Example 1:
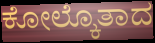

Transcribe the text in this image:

ಕೋಲ್ಕೊತಾದ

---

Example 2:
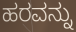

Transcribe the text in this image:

ಹರವನ್ನು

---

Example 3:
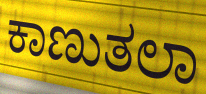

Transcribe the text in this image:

ಕಾಣುತಲಾ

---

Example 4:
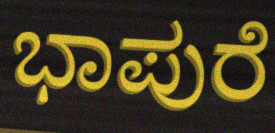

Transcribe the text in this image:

ಭಾಪುರೆ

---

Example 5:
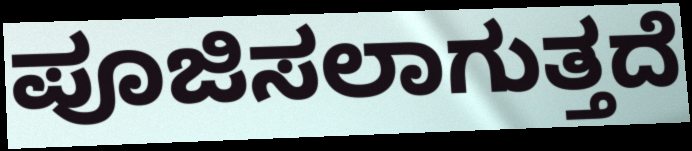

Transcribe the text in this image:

ಪೂಜಿಸಲಾಗುತ್ತದೆ